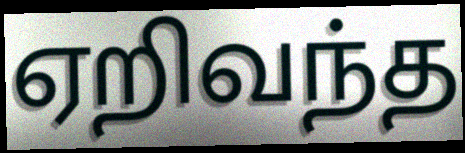
ஏறிவந்த